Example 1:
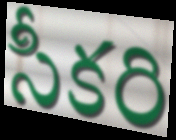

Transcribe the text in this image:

సీకరి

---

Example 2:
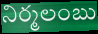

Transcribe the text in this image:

నిర్మలంబు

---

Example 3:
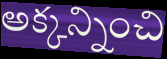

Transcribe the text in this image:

అక్కన్నించి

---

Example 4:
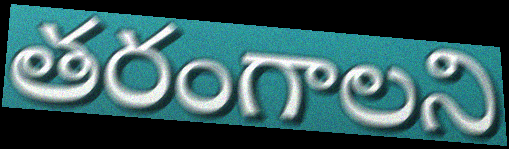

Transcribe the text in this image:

తరంగాలని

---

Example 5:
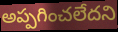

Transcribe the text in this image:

అప్పగించలేదని